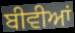
ਬੀਵੀਆਂ